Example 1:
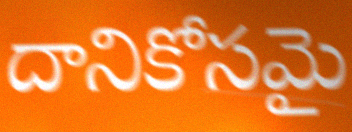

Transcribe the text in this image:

దానికోసమై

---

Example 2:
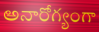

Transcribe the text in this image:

అనారోగ్యంగా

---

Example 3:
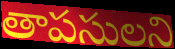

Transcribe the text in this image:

తాపసులని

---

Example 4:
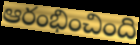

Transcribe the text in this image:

ఆరంభించింది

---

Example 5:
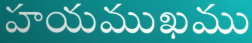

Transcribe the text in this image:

హయముఖము